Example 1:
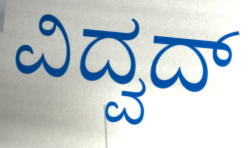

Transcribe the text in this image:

ವಿದ್ವದ್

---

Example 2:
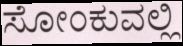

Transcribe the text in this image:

ಸೋಂಕುವಲ್ಲಿ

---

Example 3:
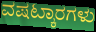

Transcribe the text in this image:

ವಷಟ್ಕಾರಗಳು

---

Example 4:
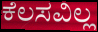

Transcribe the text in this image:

ಕೆಲಸವಿಲ್ಲ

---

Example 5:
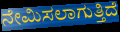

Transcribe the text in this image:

ನೇಮಿಸಲಾಗುತ್ತಿದೆ